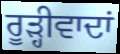
ਰੂੜ੍ਹੀਵਾਦਾਂ